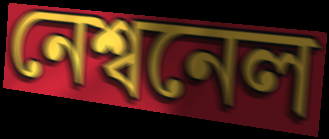
নেশ্বনেল